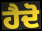
ਹੈਦੋ